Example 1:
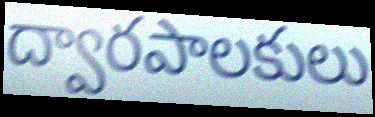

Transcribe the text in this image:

ద్వారపాలకులు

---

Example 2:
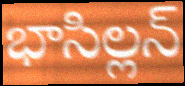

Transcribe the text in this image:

భాసిల్లన్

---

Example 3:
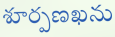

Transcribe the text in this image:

శూర్పణఖను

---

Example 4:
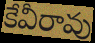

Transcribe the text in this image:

కేవీరావు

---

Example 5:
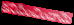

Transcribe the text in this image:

కనిపించిందామె